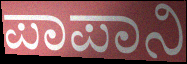
ಪಾಪಾನಿ